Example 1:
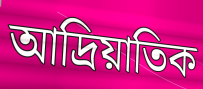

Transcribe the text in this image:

আদ্রিয়াতিক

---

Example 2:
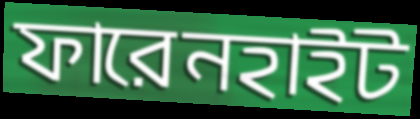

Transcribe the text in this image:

ফারেনহাইট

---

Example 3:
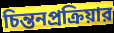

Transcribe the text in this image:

চিন্তনপ্রক্রিয়ার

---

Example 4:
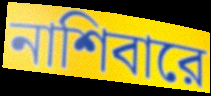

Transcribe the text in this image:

নাশিবারে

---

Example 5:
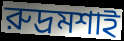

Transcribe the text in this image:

রুদ্রমশাই